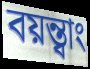
বয়ন্ত্বাং